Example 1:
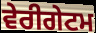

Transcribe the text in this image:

ਵੇਰੀਗੇਟਮ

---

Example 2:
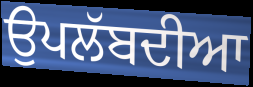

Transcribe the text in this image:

ਉਪਲੱਬਦੀਆ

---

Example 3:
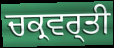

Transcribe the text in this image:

ਚਕ੍ਰਵਰ੍ਤੀ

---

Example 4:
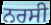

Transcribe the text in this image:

ਨਰਸੀ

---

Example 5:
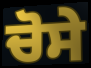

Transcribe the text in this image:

ਚੋਸੇ